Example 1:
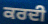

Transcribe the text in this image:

ਕਰਦੀ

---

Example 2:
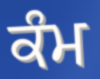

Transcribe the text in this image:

ਕੰਮ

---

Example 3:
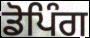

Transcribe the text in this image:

ਡੋਪਿੰਗ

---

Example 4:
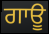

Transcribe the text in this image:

ਗਾਊ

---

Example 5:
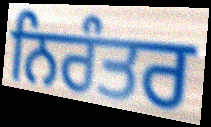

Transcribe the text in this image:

ਨਿਰੰਤਰ